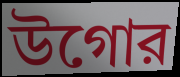
উগোর